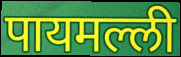
पायमल्ली